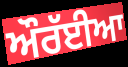
ਔਰੱਈਆ